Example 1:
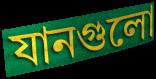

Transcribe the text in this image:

যানগুলো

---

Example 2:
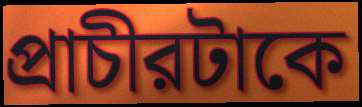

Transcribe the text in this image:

প্রাচীরটাকে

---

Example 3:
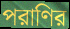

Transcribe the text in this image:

পরাণির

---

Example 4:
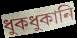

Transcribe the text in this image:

ধুকধুকানি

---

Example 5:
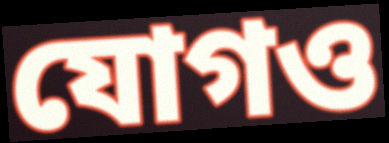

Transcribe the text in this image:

যোগও